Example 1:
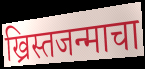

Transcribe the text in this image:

ख्रिस्तजन्माचा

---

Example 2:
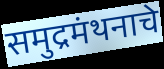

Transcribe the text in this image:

समुद्रमंथनाचे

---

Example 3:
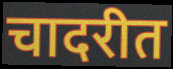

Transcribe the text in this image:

चादरीत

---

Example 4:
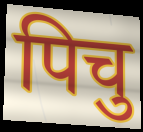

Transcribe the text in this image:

पिचु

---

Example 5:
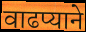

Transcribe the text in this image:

वाढप्याने